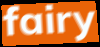
fairy